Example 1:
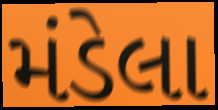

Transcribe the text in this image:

મંડેલા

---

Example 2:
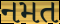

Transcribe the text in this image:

નમત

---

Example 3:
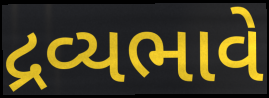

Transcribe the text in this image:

દ્રવ્યભાવે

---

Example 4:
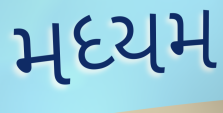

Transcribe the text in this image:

મધ્યમ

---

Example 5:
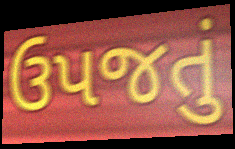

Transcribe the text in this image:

ઉપજતું